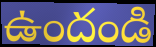
ఉందండి